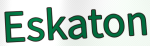
Eskaton